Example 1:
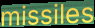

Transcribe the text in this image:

missiles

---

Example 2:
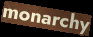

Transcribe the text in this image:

monarchy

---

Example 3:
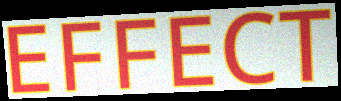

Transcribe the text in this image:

EFFECT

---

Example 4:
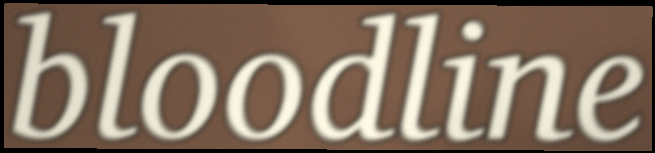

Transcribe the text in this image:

bloodline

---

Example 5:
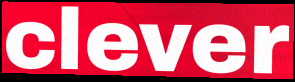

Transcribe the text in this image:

clever